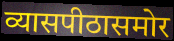
व्यासपीठासमोर